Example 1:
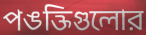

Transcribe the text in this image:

পঙক্তিগুলোর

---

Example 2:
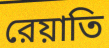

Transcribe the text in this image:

রেয়াতি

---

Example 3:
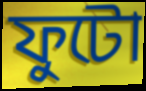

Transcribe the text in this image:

ফুটো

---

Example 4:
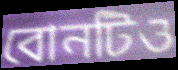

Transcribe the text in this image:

বোনটিও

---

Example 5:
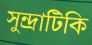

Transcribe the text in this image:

সুন্দ্রাটিকি